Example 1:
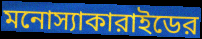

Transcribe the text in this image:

মনোস্যাকারাইডের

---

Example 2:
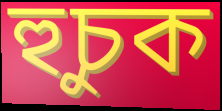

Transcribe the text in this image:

হুচুক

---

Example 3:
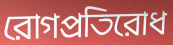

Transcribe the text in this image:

রোগপ্রতিরোধ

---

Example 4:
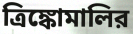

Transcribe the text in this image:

ত্রিঙ্কোমালির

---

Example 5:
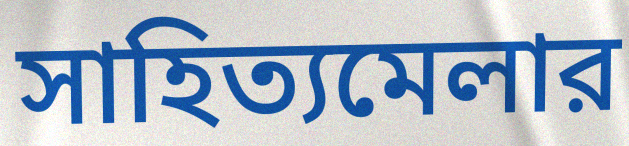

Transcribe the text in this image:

সাহিত্যমেলার